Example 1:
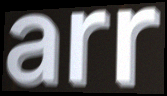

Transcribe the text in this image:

arr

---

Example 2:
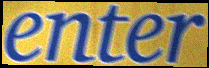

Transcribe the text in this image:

enter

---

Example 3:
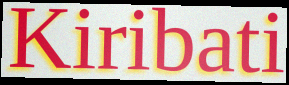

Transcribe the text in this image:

Kiribati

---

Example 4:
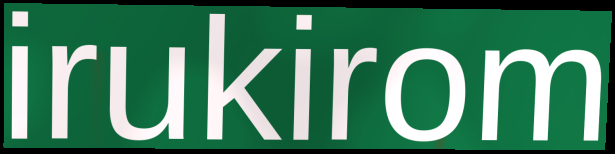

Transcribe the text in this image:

irukirom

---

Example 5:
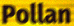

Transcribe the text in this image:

Pollan